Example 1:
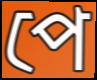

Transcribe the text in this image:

পে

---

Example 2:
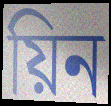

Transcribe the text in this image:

য়িন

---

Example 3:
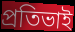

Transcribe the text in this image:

প্ৰতিভাই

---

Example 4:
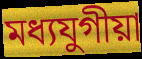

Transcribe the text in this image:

মধ্যযুগীয়া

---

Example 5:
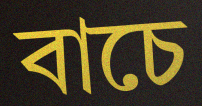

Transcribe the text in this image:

বাচে